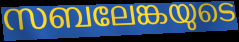
സബലേങ്കയുടെ